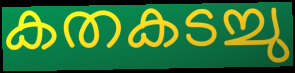
കതകടച്ചു